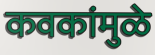
कवकांमुळे